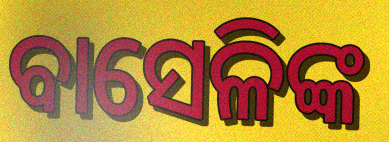
ବାସେଳିଙ୍କ